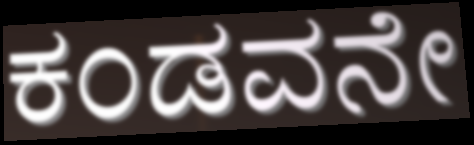
ಕಂಡವನೇ